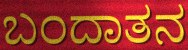
ಬಂದಾತನ